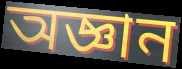
অজ্ঞান